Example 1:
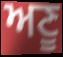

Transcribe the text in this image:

ਅਣੂ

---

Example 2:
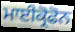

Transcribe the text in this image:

ਮਾਈਕ੍ਰੋਫੋਨ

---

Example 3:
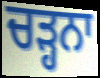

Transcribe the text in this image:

ਚੜ੍ਹਨਾ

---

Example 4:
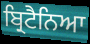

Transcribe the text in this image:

ਬ੍ਰਿਟੈਨਿਆ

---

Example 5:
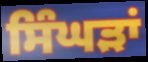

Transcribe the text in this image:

ਸਿੰਘੜਾਂ